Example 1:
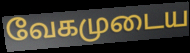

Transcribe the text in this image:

வேகமுடைய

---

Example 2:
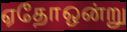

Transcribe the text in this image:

ஏதோஒன்று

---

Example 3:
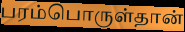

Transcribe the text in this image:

பரம்பொருள்தான்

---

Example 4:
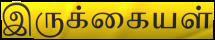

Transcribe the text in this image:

இருக்கையள்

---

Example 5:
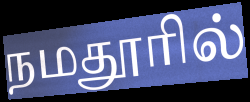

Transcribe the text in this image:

நமதூரில்